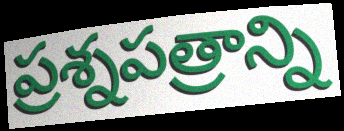
ప్రశ్నపత్రాన్ని